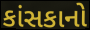
કાંસકાનો